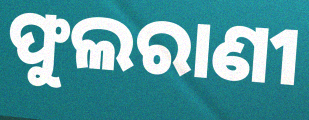
ଫୁଲରାଣୀ